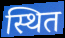
स्थित